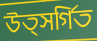
উত্সর্গিত